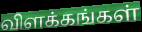
விளக்கங்கள்